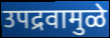
उपद्रवामुळे